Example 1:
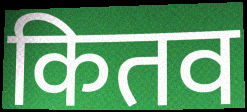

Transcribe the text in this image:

कितव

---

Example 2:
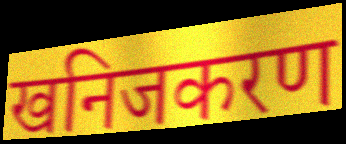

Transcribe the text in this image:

खनिजकरण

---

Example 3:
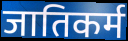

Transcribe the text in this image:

जातिकर्म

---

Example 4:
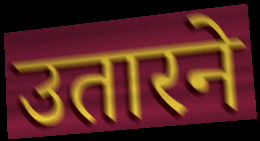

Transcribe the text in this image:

उतारने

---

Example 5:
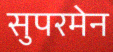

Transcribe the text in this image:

सुपरमेन